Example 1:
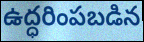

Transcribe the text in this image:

ఉద్ధరింపబడిన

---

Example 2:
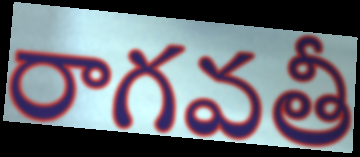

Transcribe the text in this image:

రాగవతీ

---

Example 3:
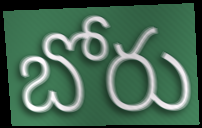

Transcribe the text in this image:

బోరు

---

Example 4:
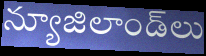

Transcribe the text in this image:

న్యూజిలాండ్‌లు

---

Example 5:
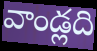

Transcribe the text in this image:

వాండ్లది